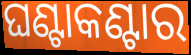
ଘଣ୍ଟାକଣ୍ଟାର